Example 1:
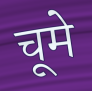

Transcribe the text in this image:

चूमे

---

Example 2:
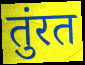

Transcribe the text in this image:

तुंरत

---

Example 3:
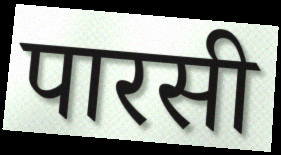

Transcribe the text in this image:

पारसी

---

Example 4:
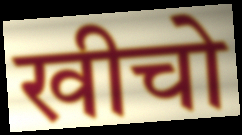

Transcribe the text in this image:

खीचो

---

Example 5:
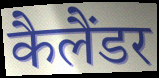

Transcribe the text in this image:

कैलैंडर